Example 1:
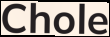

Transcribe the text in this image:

Chole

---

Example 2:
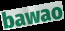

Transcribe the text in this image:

bawao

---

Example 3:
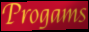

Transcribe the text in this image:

Progams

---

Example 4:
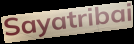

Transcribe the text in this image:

Sayatribai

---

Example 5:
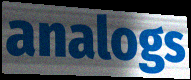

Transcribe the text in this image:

analogs